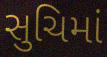
સુચિમાં